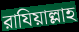
রাযিয়াল্লাহ